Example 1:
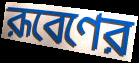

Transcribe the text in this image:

রূবেণের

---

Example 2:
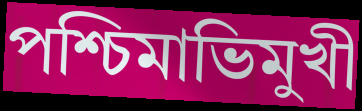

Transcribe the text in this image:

পশ্চিমাভিমুখী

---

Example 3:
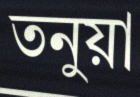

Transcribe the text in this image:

তনুয়া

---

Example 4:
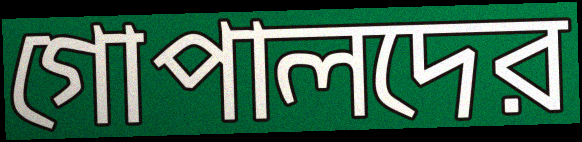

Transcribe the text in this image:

গোপালদের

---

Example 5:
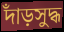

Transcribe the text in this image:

দাঁড়সুদ্ধ